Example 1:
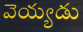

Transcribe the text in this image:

వెయ్యడు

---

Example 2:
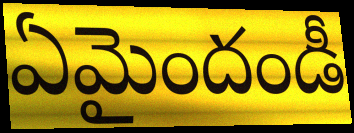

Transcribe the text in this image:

ఏమైందండీ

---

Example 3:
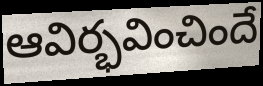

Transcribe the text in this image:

ఆవిర్భవించిందే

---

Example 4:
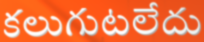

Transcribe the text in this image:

కలుగుటలేదు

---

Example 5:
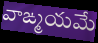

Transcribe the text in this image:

వాఙ్మయమే